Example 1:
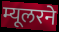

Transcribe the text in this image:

म्यूलरने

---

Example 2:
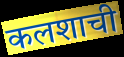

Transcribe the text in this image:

कलशाची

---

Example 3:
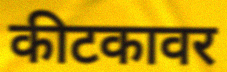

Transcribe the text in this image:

कीटकावर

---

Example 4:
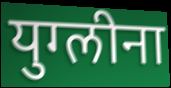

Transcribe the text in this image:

युग्लीना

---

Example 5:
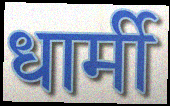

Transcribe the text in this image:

धार्मी